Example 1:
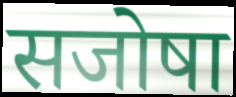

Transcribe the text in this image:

सजोषा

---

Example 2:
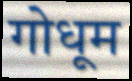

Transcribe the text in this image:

गोधूम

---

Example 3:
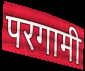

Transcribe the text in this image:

परगामी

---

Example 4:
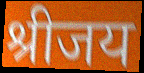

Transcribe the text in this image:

श्रीजय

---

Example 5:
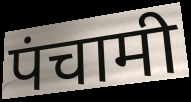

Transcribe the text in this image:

पंचामी